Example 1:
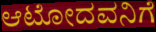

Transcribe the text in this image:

ಆಟೋದವನಿಗೆ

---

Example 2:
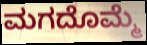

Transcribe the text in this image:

ಮಗದೊಮ್ಮೆ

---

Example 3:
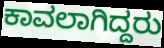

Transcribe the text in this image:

ಕಾವಲಾಗಿದ್ದರು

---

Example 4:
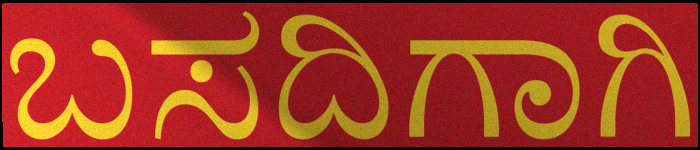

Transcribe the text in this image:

ಬಸದಿಗಾಗಿ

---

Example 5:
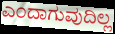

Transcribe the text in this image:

ಎಂದಾಗುವುದಿಲ್ಲ